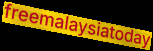
freemalaysiatoday